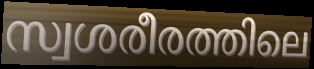
സ്വശരീരത്തിലെ